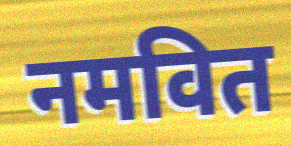
नमवित